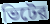
ভিটের